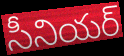
సీనియర్